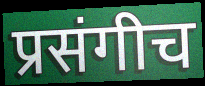
प्रसंगीच